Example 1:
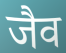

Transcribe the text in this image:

जैव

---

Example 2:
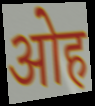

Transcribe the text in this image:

ओह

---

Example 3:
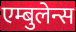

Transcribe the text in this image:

एम्बुलेन्स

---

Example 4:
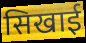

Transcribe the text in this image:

सिखाई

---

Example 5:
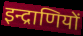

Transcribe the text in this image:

इन्द्राणियों